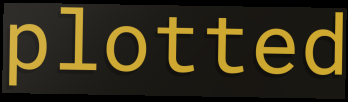
plotted